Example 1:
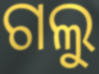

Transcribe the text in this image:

ଗଲୁ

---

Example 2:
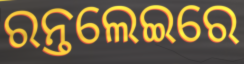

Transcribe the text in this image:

ରନ୍ତଲେଇରେ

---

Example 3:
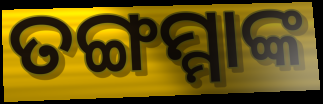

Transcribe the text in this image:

ତଙ୍ଗମ୍ମାଙ୍କ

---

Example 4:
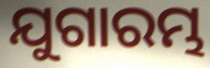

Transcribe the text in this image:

ଯୁଗାରମ୍ଭ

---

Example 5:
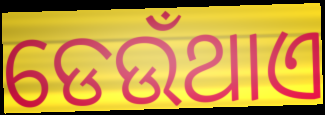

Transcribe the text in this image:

ଡେଉଁଥାଏ